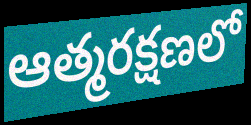
ఆత్మరక్షణలో